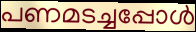
പണമടച്ചപ്പോൾ